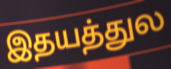
இதயத்துல